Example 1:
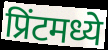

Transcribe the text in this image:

प्रिंटमध्ये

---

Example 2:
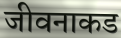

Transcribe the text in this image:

जीवनाकड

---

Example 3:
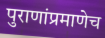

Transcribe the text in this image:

पुराणांप्रमाणेच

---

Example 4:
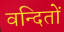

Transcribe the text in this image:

वन्दितों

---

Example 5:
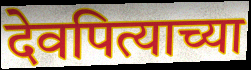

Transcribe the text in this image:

देवपित्याच्या